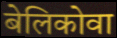
बेलिकोवा